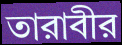
তারাবীর